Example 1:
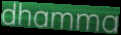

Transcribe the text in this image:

dhamma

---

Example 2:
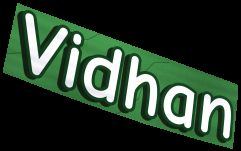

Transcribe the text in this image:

Vidhan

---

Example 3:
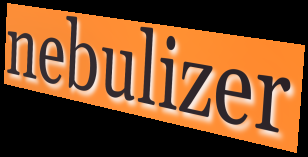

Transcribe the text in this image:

nebulizer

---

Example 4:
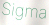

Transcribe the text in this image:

Sigma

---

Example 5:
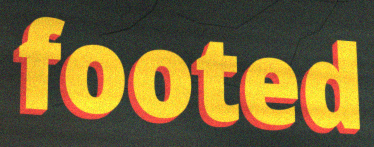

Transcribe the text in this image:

footed